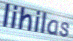
lihilas